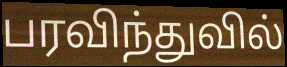
பரவிந்துவில்